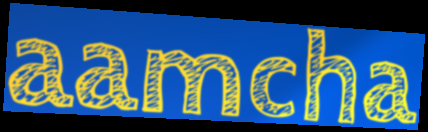
aamcha